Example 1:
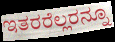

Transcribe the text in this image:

ಇತರರೆಲ್ಲರನ್ನೂ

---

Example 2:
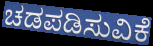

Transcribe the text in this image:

ಚಡಪಡಿಸುವಿಕೆ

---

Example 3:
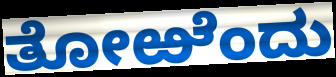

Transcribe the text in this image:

ತೋಱೆಂದು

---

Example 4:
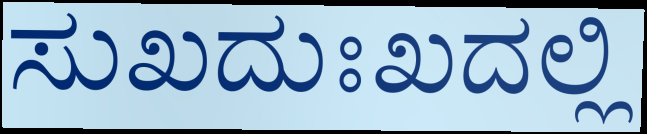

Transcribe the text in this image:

ಸುಖದುಃಖದಲ್ಲಿ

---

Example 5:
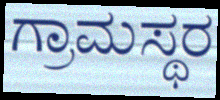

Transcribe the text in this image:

ಗ್ರಾಮಸ್ಥರ